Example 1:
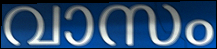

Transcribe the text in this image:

വാസം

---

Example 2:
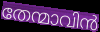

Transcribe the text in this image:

തേന്മാവിൻ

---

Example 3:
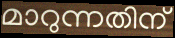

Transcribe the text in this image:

മാറുന്നതിന്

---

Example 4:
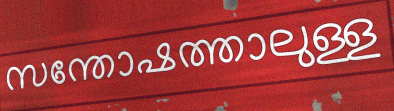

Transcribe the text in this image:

സന്തോഷത്താലുള്ള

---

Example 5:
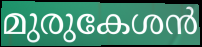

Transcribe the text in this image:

മുരുകേശൻ